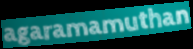
agaramamuthan